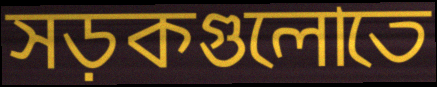
সড়কগুলোতে